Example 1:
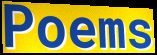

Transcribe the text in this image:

Poems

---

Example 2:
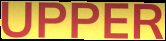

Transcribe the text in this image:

UPPER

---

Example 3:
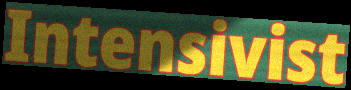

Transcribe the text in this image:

Intensivist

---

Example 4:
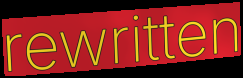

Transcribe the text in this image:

rewritten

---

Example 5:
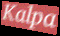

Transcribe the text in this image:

Kalpa